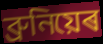
ব্ৰুনিয়েৰ